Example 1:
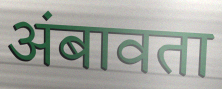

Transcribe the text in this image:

अंबावता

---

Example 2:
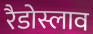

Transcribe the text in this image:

रैडोस्लाव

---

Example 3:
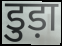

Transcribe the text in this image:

डुड़ा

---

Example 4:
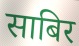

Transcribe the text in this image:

साबिर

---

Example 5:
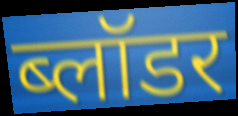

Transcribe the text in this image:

ब्लॉडर